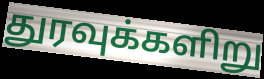
துரவுக்களிறு